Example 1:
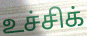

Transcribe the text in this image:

உச்சிக்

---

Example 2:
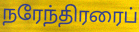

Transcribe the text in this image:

நரேந்திரரைப்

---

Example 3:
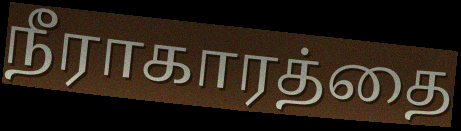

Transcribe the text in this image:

நீராகாரத்தை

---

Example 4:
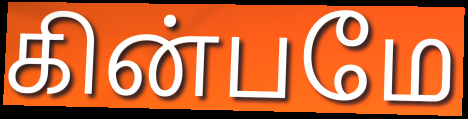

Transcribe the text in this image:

கின்பமே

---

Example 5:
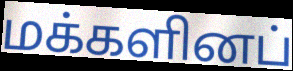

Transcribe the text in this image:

மக்களினப்